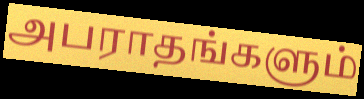
அபராதங்களும்